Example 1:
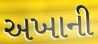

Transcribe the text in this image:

અખાની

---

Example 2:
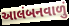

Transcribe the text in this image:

આલંબનવાળું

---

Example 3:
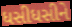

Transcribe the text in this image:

ધસીધસીને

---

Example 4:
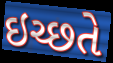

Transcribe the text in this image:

ઇચ્છતે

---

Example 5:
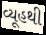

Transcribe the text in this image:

વ્યૂહથી